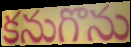
కనుగొను